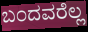
ಬಂದವರೆಲ್ಲ